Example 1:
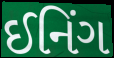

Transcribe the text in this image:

ઈનિંગ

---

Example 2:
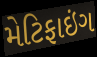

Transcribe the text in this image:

મેટિફાઇંગ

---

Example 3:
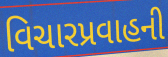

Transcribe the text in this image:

વિચારપ્રવાહની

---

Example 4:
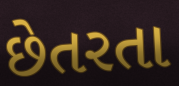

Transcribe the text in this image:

છેતરતા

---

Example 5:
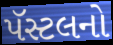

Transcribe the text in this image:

પૅસ્ટલનો